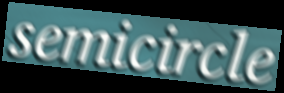
semicircle